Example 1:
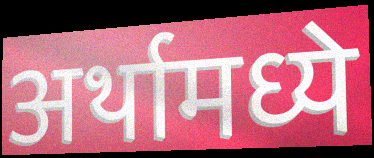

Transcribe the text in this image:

अर्थामध्ये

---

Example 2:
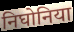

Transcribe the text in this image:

निघोनिया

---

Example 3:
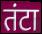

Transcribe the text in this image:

तंटा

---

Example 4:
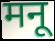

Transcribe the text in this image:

मनू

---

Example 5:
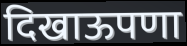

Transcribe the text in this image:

दिखाऊपणा